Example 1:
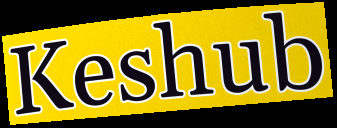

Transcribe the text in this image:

Keshub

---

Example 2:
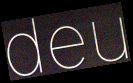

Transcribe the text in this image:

deu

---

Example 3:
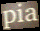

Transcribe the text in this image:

pia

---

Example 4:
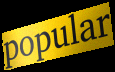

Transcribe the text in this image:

popular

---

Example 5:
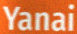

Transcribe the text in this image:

Yanai